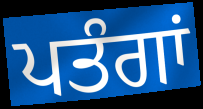
ਪਤੰਗਾਂ